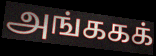
அங்ககக்